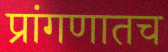
प्रांगणातच